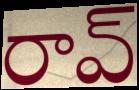
రావ్